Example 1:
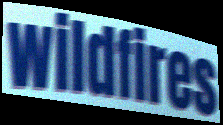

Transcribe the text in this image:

wildfires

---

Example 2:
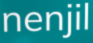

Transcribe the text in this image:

nenjil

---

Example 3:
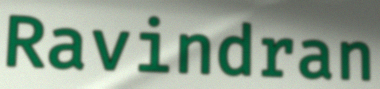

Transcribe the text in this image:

Ravindran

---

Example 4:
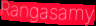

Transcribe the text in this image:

Rangasamy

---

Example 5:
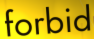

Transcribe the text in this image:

forbid